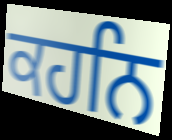
ਕਹਨਿ